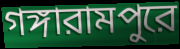
গঙ্গারামপুরে